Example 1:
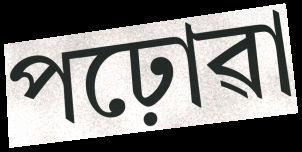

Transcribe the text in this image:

পঢ়োৱা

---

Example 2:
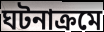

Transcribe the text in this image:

ঘটনাক্ৰমে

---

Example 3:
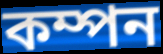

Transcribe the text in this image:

কম্পন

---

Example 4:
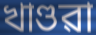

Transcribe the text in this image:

খাণ্ডৱা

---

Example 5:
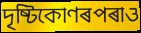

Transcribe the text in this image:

দৃষ্টিকোণৰপৰাও